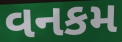
વનકમ